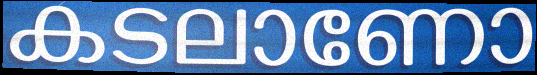
കടലാണോ